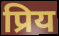
प्रिय